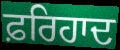
ਫ਼ਰਿਹਾਦ